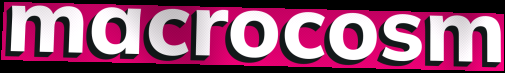
macrocosm